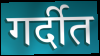
गर्दीत